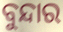
ବୁନ୍ଦାର